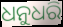
ଧନୁଧରି